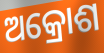
ଅକ୍ରୋଶ